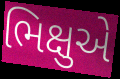
ભિક્ષુએ